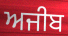
ਅਜੀਬ